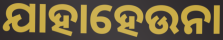
ଯାହାହେଉନା